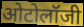
ओटोलॉजी